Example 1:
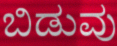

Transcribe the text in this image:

ಬಿಡುವು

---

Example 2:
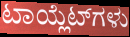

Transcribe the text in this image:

ಟಾಯ್ಲೆಟ್‌ಗಳು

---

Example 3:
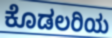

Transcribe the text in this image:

ಕೊಡಲರಿಯ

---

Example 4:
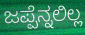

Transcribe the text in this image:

ಜಪ್ಪೆನ್ನಲಿಲ್ಲ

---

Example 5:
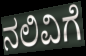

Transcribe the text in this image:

ನಲಿವಿಗೆ